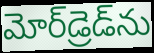
మోర్‌డ్రెడ్‌ను